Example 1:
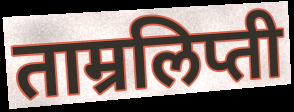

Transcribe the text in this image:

ताम्रलिप्ती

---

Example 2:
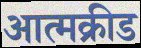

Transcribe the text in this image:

आत्मक्रीड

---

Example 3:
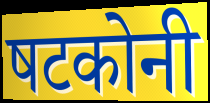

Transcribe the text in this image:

षटकोनी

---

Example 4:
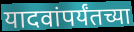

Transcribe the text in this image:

यादवांपर्यंतच्या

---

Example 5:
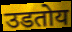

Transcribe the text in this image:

उडतोय